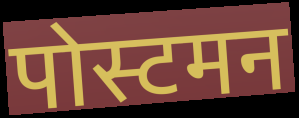
पोस्टमन